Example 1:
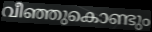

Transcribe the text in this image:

വീഞ്ഞുകൊണ്ടും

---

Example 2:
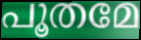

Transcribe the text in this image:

പൂതമേ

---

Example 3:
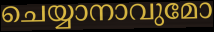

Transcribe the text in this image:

ചെയ്യാനാവുമോ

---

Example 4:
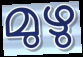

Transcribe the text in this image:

മുഴു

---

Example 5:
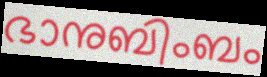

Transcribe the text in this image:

ഭാനുബിംബം